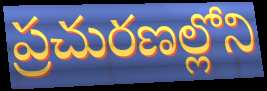
ప్రచురణల్లోని